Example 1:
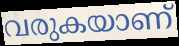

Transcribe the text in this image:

വരുകയാണ്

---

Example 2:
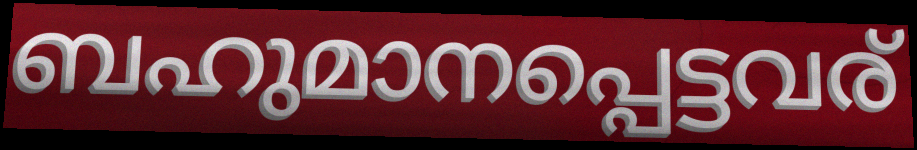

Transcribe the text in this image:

ബഹുമാനപ്പെട്ടവര്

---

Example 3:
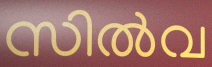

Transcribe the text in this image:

സിൽവ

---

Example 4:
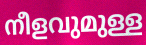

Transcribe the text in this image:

നീളവുമുള്ള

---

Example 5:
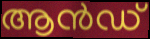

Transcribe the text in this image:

ആൻഡ്